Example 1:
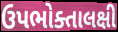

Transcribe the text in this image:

ઉપભોક્તાલક્ષી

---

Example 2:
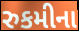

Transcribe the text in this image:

રુકમીના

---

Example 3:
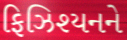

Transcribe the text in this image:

ફિઝિશ્યનને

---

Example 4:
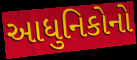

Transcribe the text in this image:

આધુનિકોનો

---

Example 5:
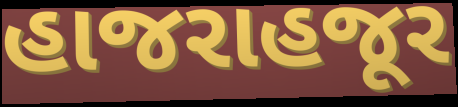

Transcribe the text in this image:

હાજરાહજૂર